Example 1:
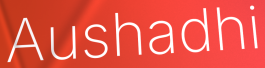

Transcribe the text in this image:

Aushadhi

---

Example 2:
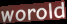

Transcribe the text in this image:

worold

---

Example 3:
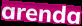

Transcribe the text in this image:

arenda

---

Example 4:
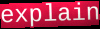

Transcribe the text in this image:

explain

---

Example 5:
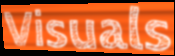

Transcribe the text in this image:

Visuals